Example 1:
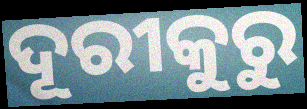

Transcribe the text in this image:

ଦୂରୀକୁରୁ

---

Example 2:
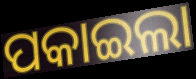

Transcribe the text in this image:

ପକାଇଲା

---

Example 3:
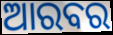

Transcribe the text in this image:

ଆରବର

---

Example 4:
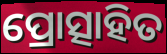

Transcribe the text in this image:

ପ୍ରୋତ୍ସାହିତ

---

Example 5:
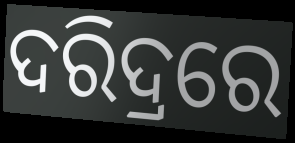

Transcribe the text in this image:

ଦରିଦ୍ରରେ